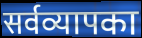
सर्वव्यापका